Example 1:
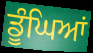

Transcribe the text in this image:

ਡੂੰਘਿਆਂ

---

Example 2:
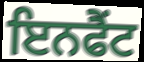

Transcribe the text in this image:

ਇਨਫੈਂਟ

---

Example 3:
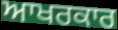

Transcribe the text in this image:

ਆਖਰਕਾਰ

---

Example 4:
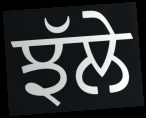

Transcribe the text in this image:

ਝੱਲੇ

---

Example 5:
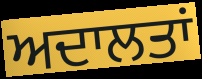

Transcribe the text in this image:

ਅਦਾਲਤਾਂ